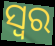
ସ୍ବର